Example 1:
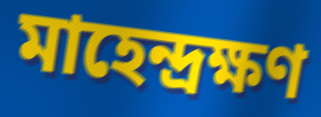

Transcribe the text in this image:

মাহেন্দ্রক্ষণ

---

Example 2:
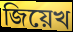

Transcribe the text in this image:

জিয়েখ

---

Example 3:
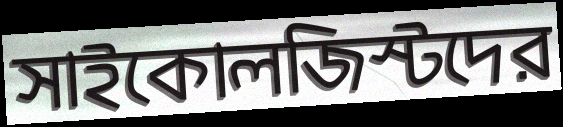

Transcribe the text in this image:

সাইকোলজিস্টদের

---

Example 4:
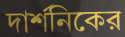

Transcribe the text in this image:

দার্শনিকের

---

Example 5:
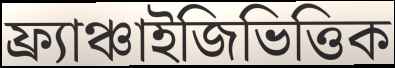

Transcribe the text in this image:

ফ্র্যাঞ্চাইজিভিত্তিক